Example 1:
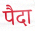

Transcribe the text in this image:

पैदा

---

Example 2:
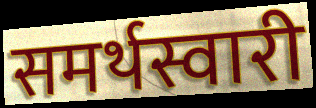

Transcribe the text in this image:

समर्थस्वारी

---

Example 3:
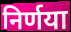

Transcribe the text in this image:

निर्णया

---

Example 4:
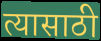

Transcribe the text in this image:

त्यासाठी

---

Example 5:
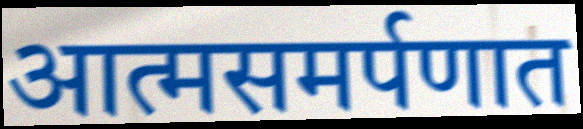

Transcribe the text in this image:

आत्मसमर्पणात